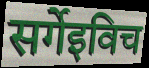
सर्गेइविच